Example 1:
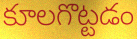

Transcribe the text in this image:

కూలగొట్టడం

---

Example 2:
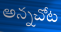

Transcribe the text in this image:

అన్నచోట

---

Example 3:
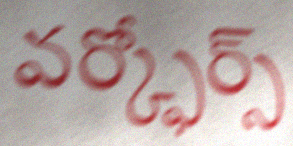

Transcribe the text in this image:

వర్క్ఫోర్స్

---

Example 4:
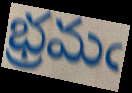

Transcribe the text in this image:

భ్రమఁ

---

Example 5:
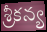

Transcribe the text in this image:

శ్రీకన్య